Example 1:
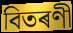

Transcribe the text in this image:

বিতৰণী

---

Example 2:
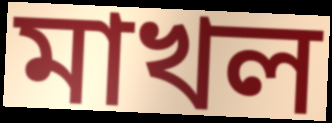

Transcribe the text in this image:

মাখল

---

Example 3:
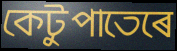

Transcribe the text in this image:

কেটুপাতেৰে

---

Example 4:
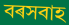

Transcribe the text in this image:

বৰসবাহ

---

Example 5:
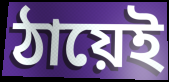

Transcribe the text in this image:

ঠায়েই